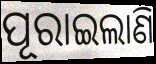
ପୂରାଇଲାଣି